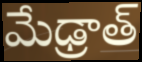
మేఢ్రాత్